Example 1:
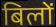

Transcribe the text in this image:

बिलों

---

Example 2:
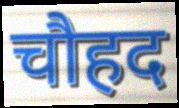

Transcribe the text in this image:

चौहद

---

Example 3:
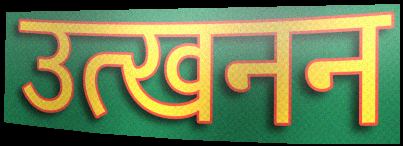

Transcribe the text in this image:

उत्‍खनन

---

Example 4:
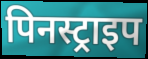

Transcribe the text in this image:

पिनस्ट्राइप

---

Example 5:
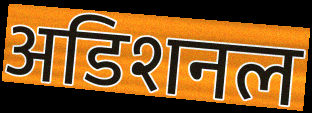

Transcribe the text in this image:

अडिशनल